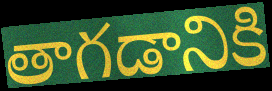
తాగడానికి